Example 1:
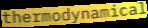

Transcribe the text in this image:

thermodynamical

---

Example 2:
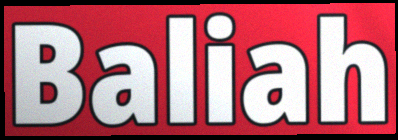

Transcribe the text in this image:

Baliah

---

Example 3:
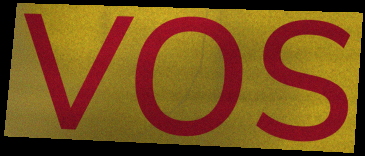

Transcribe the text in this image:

VOS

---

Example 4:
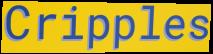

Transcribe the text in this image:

Cripples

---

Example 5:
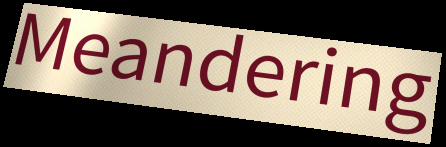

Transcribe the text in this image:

Meandering